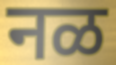
नळ